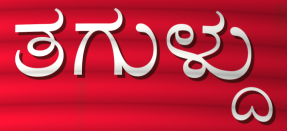
ತಗುಳ್ದು